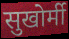
सुखोर्मी